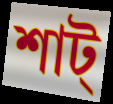
শাট্